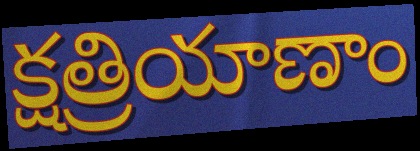
క్షత్రియాణాం